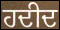
ਹਦੀਦ